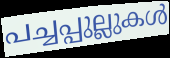
പച്ചപ്പുല്ലുകൾ